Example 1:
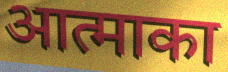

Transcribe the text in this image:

आत्माका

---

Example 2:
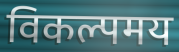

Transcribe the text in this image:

विकल्पमय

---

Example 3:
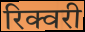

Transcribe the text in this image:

रिक्वरी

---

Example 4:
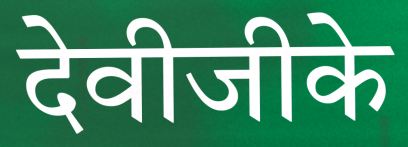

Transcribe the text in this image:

देवीजीके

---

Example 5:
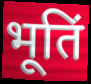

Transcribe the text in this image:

भूतिं